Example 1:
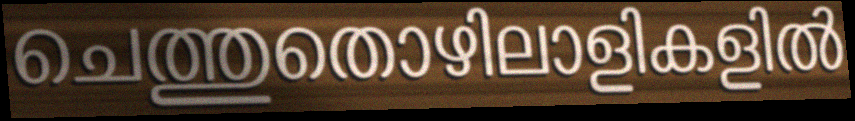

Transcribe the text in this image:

ചെത്തുതൊഴിലാളികളിൽ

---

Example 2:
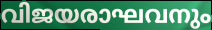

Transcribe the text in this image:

വിജയരാഘവനും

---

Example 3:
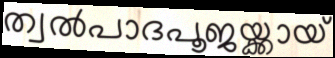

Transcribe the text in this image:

ത്വൽപാദപൂജയ്ക്കായ്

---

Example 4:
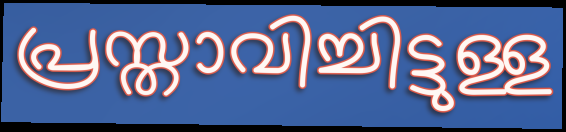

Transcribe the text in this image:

പ്രസ്താവിച്ചിട്ടുള്ള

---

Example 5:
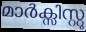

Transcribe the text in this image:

മാർക്സിസ്റ്റു